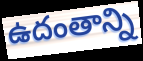
ఉదంతాన్ని